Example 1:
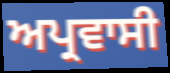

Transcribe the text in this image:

ਅਪ੍ਰਵਾਸੀ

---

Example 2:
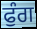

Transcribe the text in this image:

ਫੁੰਗ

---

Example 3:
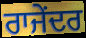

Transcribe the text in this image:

ਰਾਜੇਂਦਰ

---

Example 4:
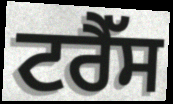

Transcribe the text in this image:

ਟਰੈੱਸ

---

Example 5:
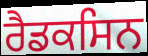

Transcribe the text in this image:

ਰੈਡਕਸਿਨ